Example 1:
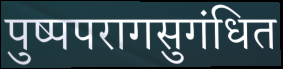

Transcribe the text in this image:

पुष्पपरागसुगंधित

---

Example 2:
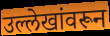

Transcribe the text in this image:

उल्लेखांवरून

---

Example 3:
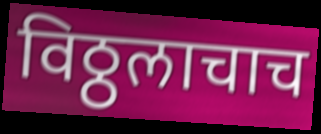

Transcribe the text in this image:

विठ्ठलाचाच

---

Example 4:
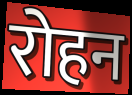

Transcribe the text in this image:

रोहन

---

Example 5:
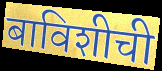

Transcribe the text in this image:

बाविशीची